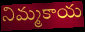
నిమ్మకాయ